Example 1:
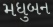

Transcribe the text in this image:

મધુબન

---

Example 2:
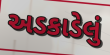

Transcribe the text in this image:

અડકાડેલું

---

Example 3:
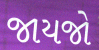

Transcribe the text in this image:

જાયજો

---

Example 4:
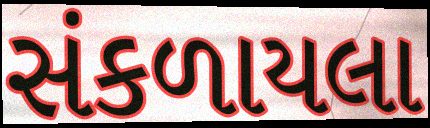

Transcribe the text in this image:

સંકળાયલા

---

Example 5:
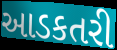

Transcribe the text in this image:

આડકતરી